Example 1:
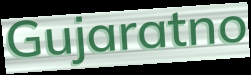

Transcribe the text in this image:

Gujaratno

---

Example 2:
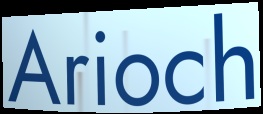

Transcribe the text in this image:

Arioch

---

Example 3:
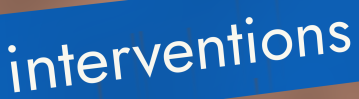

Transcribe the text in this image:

interventions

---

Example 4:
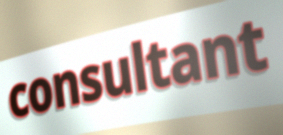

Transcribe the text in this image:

consultant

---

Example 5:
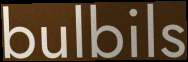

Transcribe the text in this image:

bulbils